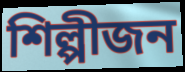
শিল্পীজন